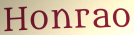
Honrao